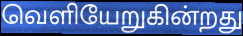
வெளியேறுகின்றது